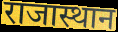
राजास्थान